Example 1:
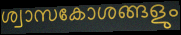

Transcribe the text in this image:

ശ്വാസകോശങ്ങളും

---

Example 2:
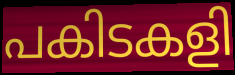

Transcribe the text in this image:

പകിടകളി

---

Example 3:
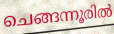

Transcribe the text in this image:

ചെങ്ങന്നൂരിൽ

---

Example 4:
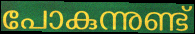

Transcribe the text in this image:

പോകുന്നുണ്ട്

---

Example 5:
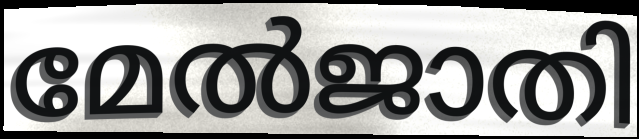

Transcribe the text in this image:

മേൽജാതി